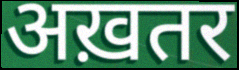
अख़तर